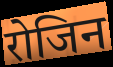
रोजिन